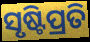
ସୃଷ୍ଟିପ୍ରତି